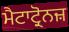
ਮੈਟਾਟ੍ਰੋਨਜ਼